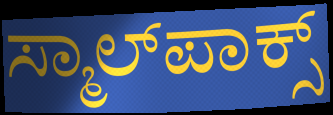
ಸ್ಮಾಲ್‌ಪಾಕ್ಸ್